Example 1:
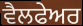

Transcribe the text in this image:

ਵੈਲਫੇਅਰ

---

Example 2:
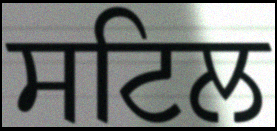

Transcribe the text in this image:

ਸਟਿਲ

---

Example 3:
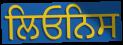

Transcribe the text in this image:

ਲਿਓਨਿਸ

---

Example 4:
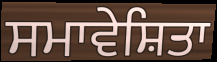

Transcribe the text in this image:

ਸਮਾਵੇਸ਼ਿਤਾ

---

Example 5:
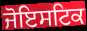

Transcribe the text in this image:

ਜੋਇਸਟਿਕ